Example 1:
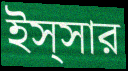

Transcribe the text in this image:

ইস্সার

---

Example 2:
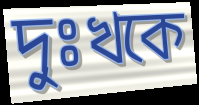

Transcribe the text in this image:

দুঃখকে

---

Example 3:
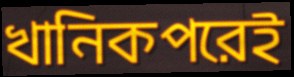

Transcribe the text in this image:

খানিকপরেই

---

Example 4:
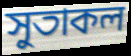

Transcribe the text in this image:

সুতাকল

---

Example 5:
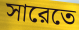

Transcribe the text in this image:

সারেতে